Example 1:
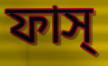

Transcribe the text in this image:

ফাস্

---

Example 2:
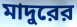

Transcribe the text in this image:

মাদুরের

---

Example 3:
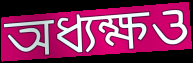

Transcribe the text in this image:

অধ্যক্ষও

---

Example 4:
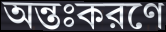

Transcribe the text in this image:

অন্তঃকরণে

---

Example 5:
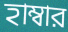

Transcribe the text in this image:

হাম্বার